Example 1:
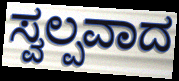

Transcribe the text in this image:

ಸ್ವಲ್ಪವಾದ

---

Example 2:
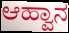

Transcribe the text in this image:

ಆಹ್ವಾನ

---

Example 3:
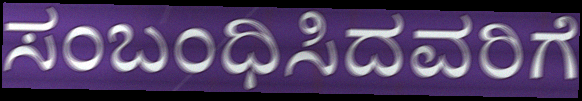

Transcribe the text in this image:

ಸಂಬಂಧಿಸಿದವರಿಗೆ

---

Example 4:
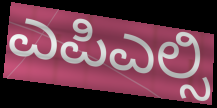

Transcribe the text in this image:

ಎಪಿಎಲ್ಸಿ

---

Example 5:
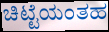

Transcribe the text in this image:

ಚಿಟ್ಟೆಯಂತಹ